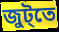
জুট্তে